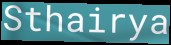
Sthairya